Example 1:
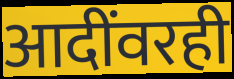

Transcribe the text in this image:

आदींवरही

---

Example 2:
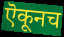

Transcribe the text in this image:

ऎकूनच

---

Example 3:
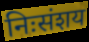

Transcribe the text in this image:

निःसंशय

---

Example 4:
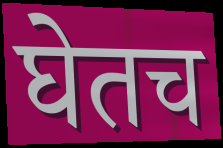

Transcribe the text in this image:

घेतच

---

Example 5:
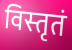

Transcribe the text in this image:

विस्तृतं